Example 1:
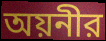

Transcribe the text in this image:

অয়নীর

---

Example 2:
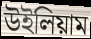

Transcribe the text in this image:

উইলিয়াম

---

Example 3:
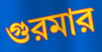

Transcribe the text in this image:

গুরমার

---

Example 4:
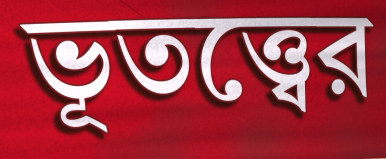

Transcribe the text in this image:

ভূতত্ত্বের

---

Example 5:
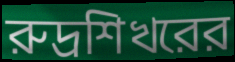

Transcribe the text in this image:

রুদ্রশিখরের